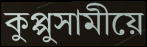
কুপ্পুসামীয়ে